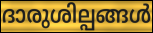
ദാരുശില്പങ്ങൾ